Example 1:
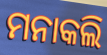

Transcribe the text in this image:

ମନାକଲି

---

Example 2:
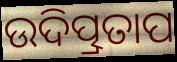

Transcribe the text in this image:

ଉଦିତ୍ପ୍ରତାପ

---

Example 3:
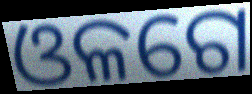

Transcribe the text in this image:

ଓଳଗେ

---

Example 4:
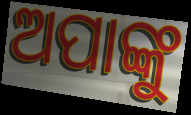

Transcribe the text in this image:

ଅପାଙ୍କୁ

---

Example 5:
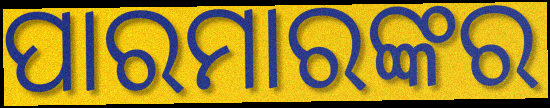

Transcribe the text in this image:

ପାରମାରଙ୍କର